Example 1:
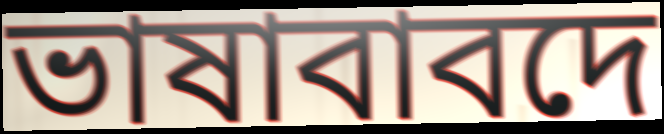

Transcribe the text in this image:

ভাষাবাবদে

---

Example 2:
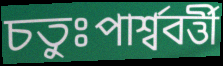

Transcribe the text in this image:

চতুঃপার্শ্ববর্ত্তী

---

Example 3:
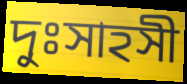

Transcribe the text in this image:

দুঃসাহসী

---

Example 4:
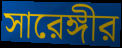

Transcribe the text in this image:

সারেঙ্গীর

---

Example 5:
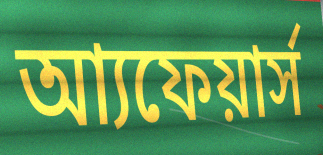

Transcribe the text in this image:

আ্যফেয়ার্স